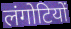
लंगोटियों